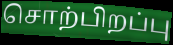
சொற்பிறப்பு